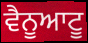
ਵੈਨੂਆਟੂ